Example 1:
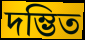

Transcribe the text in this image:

দম্ভিত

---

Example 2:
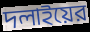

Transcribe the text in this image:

দলাইয়ের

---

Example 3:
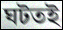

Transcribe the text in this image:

ঘটতই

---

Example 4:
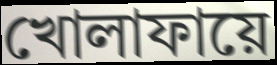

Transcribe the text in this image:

খোলাফায়ে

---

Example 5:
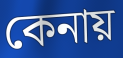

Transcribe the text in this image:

কেনায়